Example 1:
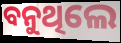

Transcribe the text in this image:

ବନୁଥିଲେ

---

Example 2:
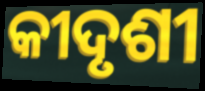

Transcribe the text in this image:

କୀଦୃଶୀ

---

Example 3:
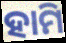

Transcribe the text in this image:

ହାମି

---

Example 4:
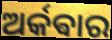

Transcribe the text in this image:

ଅର୍କଵାର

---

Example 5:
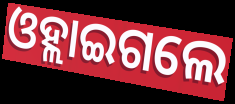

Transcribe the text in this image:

ଓହ୍ଲାଇଗଲେ